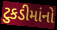
ટુકડીમાંનો